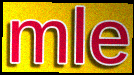
mle